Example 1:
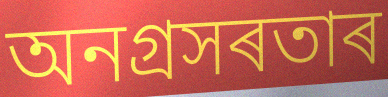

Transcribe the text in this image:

অনগ্ৰসৰতাৰ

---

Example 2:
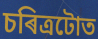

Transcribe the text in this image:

চৰিত্ৰটোত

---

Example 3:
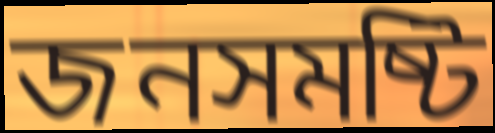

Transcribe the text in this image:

জনসমষ্টি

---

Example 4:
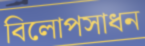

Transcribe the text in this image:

বিলোপসাধন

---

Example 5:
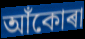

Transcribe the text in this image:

আঁকোৰা